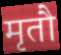
मृतौ